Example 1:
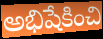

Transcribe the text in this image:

అభిషేకించి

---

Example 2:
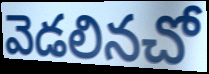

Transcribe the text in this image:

వెడలినచో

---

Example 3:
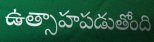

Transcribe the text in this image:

ఉత్సాహపడుతోంది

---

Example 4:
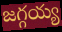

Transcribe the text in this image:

జగ్గయ్య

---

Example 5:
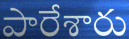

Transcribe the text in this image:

పారేశారు